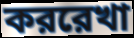
কররেখা